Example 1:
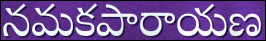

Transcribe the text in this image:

నమకపారాయణ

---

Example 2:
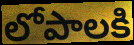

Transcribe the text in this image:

లోపాలకి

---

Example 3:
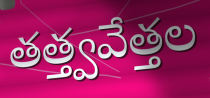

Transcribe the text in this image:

తత్త్వవేత్తల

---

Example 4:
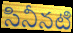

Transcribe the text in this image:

సినీనటి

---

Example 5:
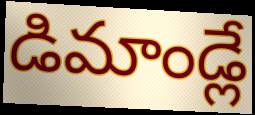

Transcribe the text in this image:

డిమాండ్లే